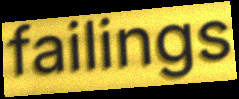
failings